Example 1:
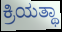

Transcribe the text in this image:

ಕ್ರಿಯತ್ಥಾ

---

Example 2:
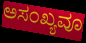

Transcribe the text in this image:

ಅಸಂಖ್ಯವೂ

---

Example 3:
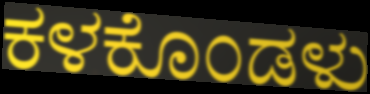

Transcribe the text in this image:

ಕಳಕೊಂಡಳು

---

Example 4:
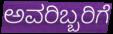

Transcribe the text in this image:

ಅವರಿಬ್ಬರಿಗೆ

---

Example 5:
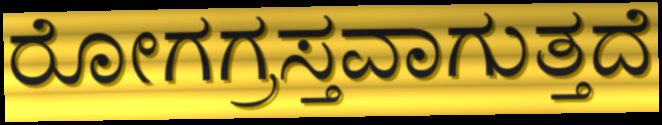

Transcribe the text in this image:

ರೋಗಗ್ರಸ್ತವಾಗುತ್ತದೆ